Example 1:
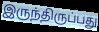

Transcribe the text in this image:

இருந்திருப்பது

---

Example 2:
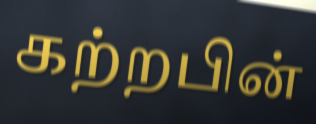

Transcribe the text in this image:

கற்றபின்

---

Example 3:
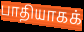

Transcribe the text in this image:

பாதியாகக்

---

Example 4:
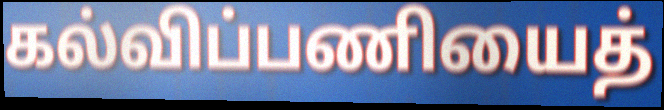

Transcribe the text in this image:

கல்விப்பணியைத்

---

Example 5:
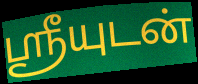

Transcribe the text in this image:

ஸ்ரீயுடன்